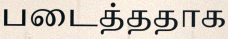
படைத்ததாக